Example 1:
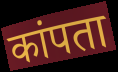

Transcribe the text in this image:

कांपता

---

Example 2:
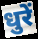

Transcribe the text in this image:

धुरें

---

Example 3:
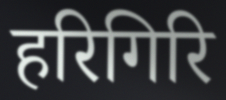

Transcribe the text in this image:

हरिगिरि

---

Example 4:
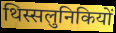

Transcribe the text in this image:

थिस्सलुनिकियों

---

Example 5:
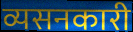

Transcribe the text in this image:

व्यसनकारी